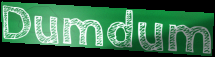
Dumdum